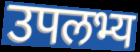
उपलभ्य